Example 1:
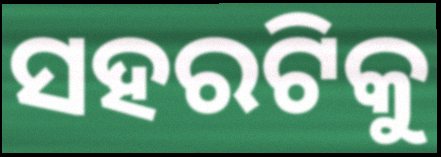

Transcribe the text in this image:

ସହରଟିକୁ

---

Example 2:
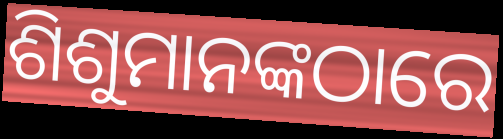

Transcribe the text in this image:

ଶିଶୁମାନଙ୍କଠାରେ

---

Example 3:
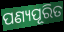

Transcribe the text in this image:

ପଣ୍ୟପୂରିତ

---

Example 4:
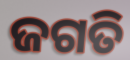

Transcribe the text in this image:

ଜଗତି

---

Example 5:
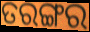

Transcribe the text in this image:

ତରଙ୍ଗର